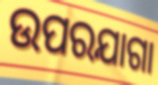
ଉପରଯାଗା